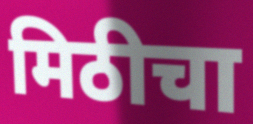
मिठीचा